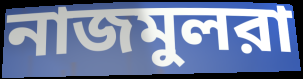
নাজমুলরা